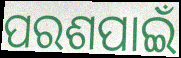
ପରଶପାଇଁ